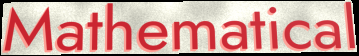
Mathematical